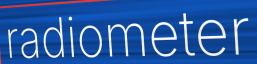
radiometer